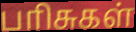
பரிசுகள்